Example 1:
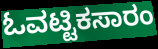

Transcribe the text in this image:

ಓವಟ್ಟಿಕಸಾರಂ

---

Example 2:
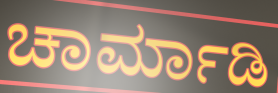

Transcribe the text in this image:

ಚಾರ್ಮಾಡಿ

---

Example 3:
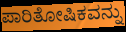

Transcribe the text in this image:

ಪಾರಿತೋಷಿಕವನ್ನು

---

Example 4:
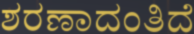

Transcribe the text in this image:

ಶರಣಾದಂತಿದೆ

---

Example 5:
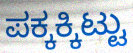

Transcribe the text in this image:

ಪಕ್ಕಕ್ಕಿಟ್ಟು